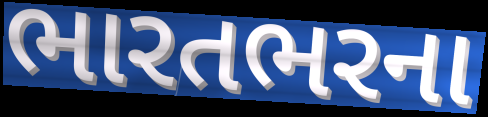
ભારતભરના